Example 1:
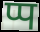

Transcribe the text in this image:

प्प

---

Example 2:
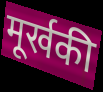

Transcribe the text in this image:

मूर्खकी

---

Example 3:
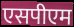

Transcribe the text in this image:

एसपीएम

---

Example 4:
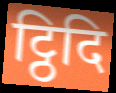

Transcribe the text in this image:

ट्ठिदि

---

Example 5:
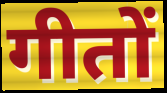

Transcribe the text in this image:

गीतों